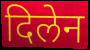
दिलेन